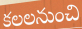
కలలనుంచి